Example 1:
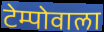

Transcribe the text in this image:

टेम्पोवाला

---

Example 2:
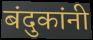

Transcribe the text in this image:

बंदुकांनी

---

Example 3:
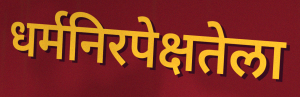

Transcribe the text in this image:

धर्मनिरपेक्षतेला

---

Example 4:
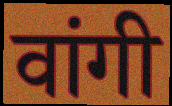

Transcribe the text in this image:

वांगी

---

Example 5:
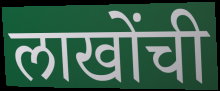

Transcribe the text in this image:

लाखोंची